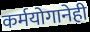
कर्मयोगानेही